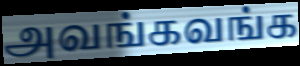
அவங்கவங்க